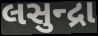
લસુન્દ્રા